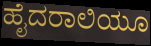
ಹೈದರಾಲಿಯೂ